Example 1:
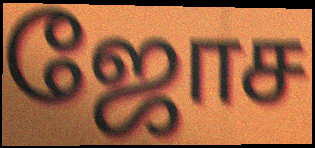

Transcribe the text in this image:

ஜோச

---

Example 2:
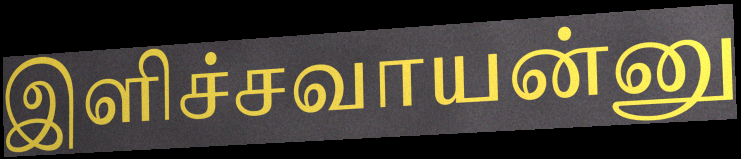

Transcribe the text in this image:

இளிச்சவாயன்னு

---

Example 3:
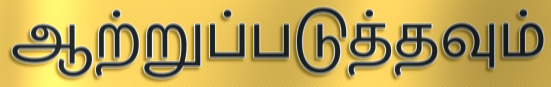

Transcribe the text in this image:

ஆற்றுப்படுத்தவும்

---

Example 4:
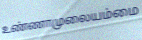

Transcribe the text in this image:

உண்ணாமுலையம்மை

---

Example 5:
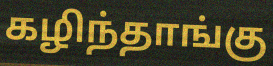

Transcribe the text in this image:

கழிந்தாங்கு